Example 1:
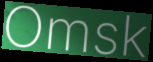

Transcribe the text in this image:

Omsk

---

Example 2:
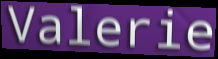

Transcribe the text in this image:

Valerie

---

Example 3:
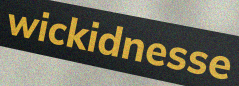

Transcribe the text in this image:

wickidnesse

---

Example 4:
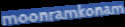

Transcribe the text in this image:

moonramkonam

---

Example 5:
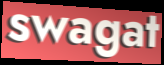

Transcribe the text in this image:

swagat